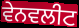
ਵੇਨਵਲੀਟ